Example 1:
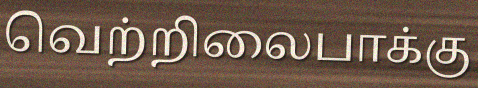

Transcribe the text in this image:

வெற்றிலைபாக்கு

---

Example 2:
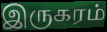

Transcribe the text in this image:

இருகரம்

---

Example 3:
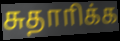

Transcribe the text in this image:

சுதாரிக்க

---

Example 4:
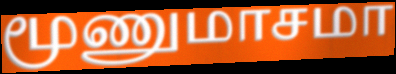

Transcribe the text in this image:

மூணுமாசமா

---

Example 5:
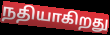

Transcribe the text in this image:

நதியாகிறது